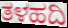
ತಳಹದಿ